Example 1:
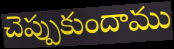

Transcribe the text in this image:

చెప్పుకుందాము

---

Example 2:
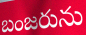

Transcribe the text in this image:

బంజరును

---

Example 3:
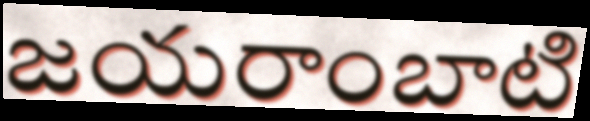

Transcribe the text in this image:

జయరాంబాటి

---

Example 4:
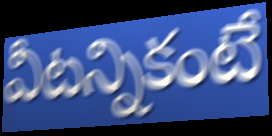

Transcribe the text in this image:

వీటన్నికంటే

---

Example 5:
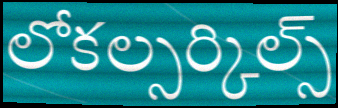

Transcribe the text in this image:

లోకల్సర్కిల్స్